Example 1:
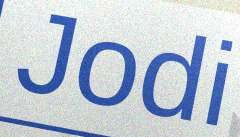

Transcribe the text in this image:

Jodi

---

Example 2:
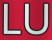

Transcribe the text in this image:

LU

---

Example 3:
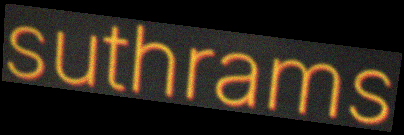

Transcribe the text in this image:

suthrams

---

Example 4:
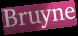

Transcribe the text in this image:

Bruyne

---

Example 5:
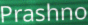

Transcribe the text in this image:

Prashno